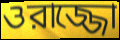
ওরাজ্জো